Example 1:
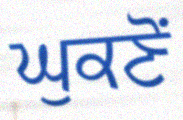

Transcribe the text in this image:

ਘੁਕਣੋਂ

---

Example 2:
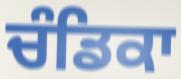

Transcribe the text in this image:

ਚੰਡਿਕਾ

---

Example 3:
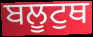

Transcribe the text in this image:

ਬਲੂਟੁਥ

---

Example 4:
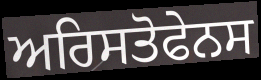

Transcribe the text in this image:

ਅਰਿਸਤੋਫੇਨਸ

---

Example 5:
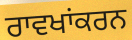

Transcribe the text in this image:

ਰਾਵਖਾਂਕਰਨ